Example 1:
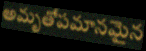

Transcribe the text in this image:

అమృతోపమానమైన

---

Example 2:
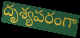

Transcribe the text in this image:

దృశ్యపరంగా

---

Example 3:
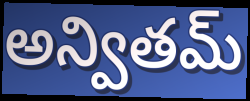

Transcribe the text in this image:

అన్వితమ్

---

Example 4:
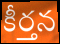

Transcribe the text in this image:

కీర్తన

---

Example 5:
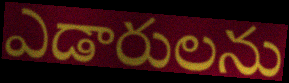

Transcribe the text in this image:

ఎడారులను